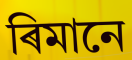
ৰিমানে